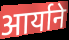
आर्याने